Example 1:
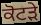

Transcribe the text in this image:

ਕੋਟੜੇ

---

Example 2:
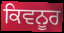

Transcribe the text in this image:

ਕਿਵਨੂਰ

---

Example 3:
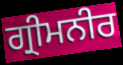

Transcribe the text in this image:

ਗ੍ਰੀਮਨੀਰ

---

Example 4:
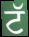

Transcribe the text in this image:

ਟੱ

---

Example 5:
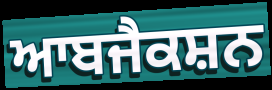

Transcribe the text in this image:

ਆਬਜੈਕਸ਼ਨ